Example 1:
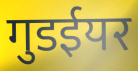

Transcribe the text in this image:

गुडईयर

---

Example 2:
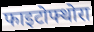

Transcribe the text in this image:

फाइटोफ्थोरा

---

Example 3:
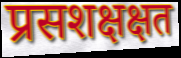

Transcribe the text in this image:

प्रसशक्षक्षत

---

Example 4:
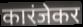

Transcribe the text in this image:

कारंजेकर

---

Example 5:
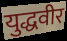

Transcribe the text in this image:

युद्धवीर